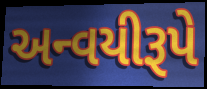
અન્વયીરૂપે